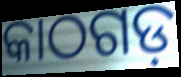
କାଠଗଡ଼